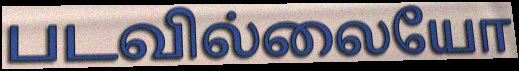
படவில்லையோ